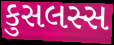
કુસલસ્સ